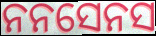
ନନସେନସ